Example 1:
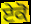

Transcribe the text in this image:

ਏਕੋ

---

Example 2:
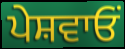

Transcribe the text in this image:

ਪੇਸ਼ਵਾਓਂ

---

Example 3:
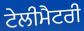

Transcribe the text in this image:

ਟੇਲੀਮੈਟਰੀ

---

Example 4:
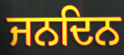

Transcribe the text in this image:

ਜਨਦਿਨ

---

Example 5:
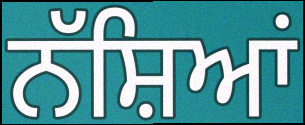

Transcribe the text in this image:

ਨੱਸ਼ਿਆਂ